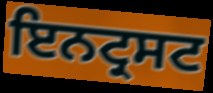
ਇਨਟ੍ਰਸਟ